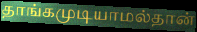
தாங்கமுடியாமல்தான்